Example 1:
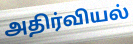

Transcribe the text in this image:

அதிர்வியல்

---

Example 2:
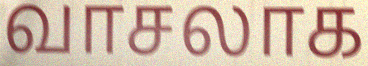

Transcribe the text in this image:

வாசலாக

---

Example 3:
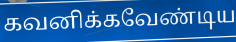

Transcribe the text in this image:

கவனிக்கவேண்டிய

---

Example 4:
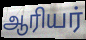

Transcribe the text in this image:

ஆரியர்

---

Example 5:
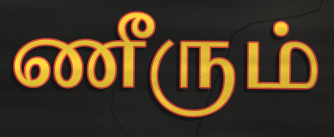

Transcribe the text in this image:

ணீரும்